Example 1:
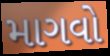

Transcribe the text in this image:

માગવો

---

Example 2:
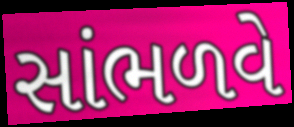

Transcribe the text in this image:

સાંભળવે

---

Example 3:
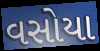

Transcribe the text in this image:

વસોયા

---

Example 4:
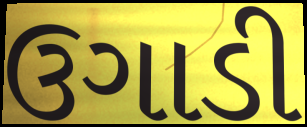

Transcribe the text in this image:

ઉગાડી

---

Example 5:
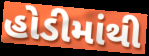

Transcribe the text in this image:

હોડીમાંથી